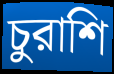
চুরাশি